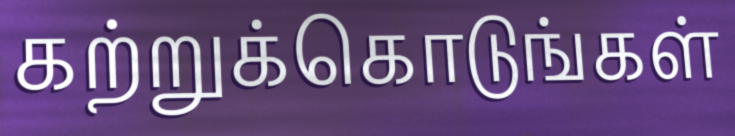
கற்றுக்கொடுங்கள்